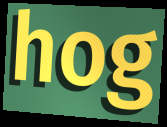
hog